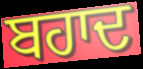
ਬਹਾਦ